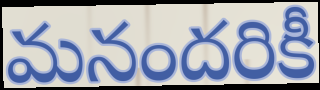
మనందరికీ